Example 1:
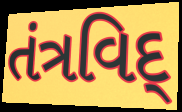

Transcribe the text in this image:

તંત્રવિદ્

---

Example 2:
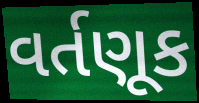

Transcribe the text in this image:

વર્તણૂક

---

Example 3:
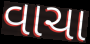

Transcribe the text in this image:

વાચા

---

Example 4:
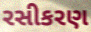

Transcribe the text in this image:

રસીકરણ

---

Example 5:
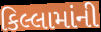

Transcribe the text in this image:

કિલ્લામાંની